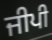
ਜੀਪੀ